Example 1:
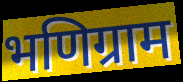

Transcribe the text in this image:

भणिग्राम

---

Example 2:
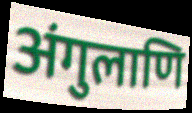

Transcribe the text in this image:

अंगुलाणि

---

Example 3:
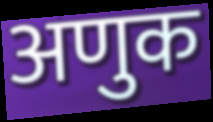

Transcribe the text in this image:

अणुक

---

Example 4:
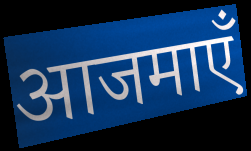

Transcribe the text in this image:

आजमाएँ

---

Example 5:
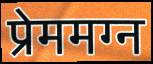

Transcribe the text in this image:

प्रेममग्न